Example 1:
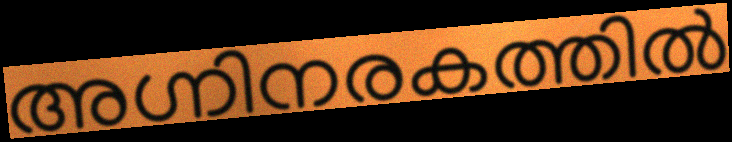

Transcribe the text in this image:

അഗ്നിനരകത്തിൽ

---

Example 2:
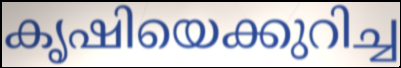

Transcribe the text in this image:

കൃഷിയെക്കുറിച്ച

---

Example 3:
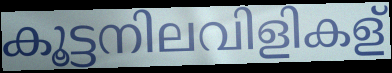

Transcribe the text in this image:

കൂട്ടനിലവിളികള്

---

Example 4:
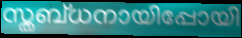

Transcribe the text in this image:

സ്തബ്ധനായിപ്പോയി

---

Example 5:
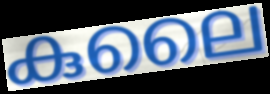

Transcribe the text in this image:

കുലൈ